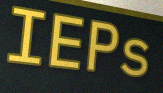
IEPs